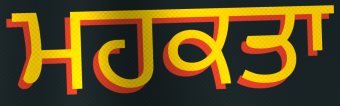
ਮਹਕਤਾ